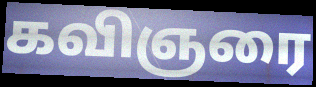
கவிஞரை